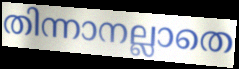
തിന്നാനല്ലാതെ